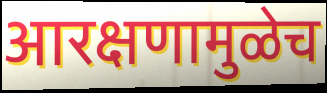
आरक्षणामुळेच